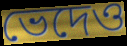
ভেদেও